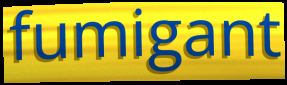
fumigant